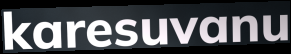
karesuvanu